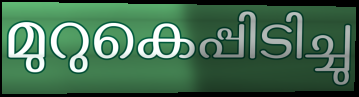
മുറുകെപ്പിടിച്ചു